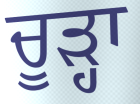
ਚੂੜ੍ਹਾ